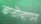
ਡਾਗੇਵਾਸ